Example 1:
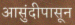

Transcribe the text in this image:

आसुंदीपासून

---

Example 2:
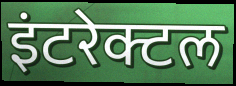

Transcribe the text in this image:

इंटरेक्टल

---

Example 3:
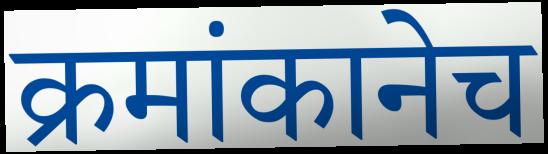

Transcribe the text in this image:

क्रमांकानेच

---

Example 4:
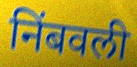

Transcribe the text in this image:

निंबवली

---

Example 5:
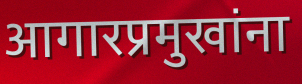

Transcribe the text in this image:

आगारप्रमुखांना